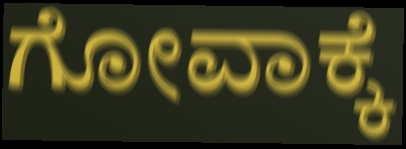
ಗೋವಾಕ್ಕೆ